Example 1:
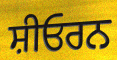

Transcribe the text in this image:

ਸ਼ੀਓਰਨ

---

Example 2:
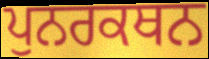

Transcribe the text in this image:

ਪੁਨਰਕਥਨ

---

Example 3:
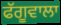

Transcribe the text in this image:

ਫੱਗੂਵਾਲਾ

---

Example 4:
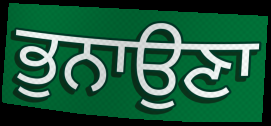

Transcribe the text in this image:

ਭੁਨਾਉਣਾ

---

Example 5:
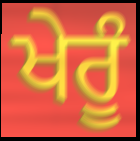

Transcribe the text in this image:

ਖੇਰੂੰ